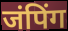
जंपिंग